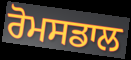
ਰੋਮਸਡਾਲ